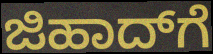
ಜಿಹಾದ್‌ಗೆ